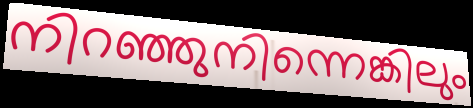
നിറഞ്ഞുനിന്നെങ്കിലും